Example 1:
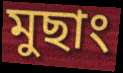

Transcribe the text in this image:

মুছাং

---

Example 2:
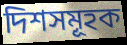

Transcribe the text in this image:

দিশসমূহক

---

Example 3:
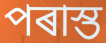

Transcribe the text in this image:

পৰাস্ত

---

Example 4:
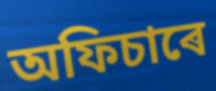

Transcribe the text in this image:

অফিচাৰে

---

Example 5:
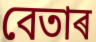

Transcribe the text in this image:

বেতাৰ